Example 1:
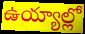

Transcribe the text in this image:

ఉయ్యాల్లో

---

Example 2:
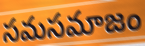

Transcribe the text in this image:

సమసమాజం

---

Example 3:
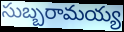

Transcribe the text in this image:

సుబ్బరామయ్య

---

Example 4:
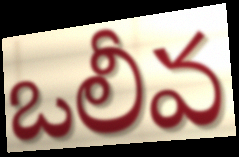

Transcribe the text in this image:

ఒలీవ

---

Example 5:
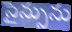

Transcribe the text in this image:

సైన్సును